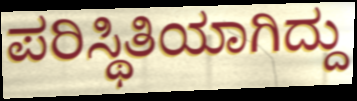
ಪರಿಸ್ಥಿತಿಯಾಗಿದ್ದು